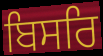
ਬਿਸਰਿ